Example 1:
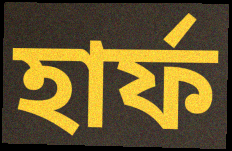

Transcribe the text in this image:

হার্ফ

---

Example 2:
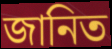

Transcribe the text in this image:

জানিত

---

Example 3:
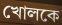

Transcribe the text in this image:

খোলকে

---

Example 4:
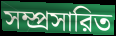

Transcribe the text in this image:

সম্প্রসারিত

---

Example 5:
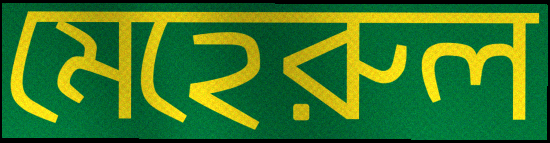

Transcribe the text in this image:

মেহেরুল